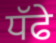
ਧੱਫੇ